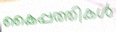
കൈപ്പത്തികൾ